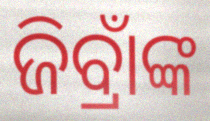
ଜିବ୍ରାଁଙ୍କ